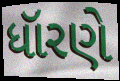
ધૉરણે